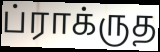
ப்ராக்ருத